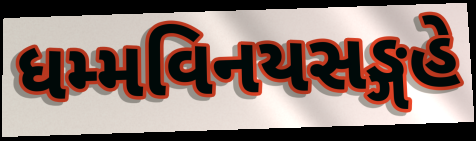
ધમ્મવિનયસઙ્ગહે